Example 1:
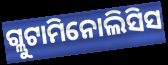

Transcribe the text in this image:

ଗ୍ଲୁଟାମିନୋଲିସିସ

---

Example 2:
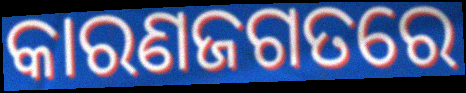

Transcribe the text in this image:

କାରଣଜଗତରେ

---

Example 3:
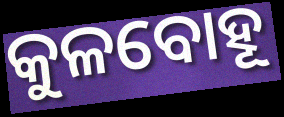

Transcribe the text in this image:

କୁଳବୋହୂ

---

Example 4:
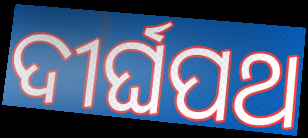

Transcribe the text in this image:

ଦୀର୍ଘପଥ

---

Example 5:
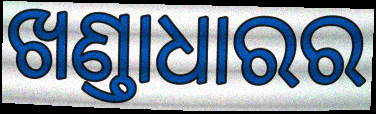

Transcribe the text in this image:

ଖଣ୍ଡାଧାରର